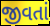
જીવતાં